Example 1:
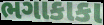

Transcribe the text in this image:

ભગાકાકા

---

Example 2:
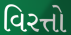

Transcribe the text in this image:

વિરત્તો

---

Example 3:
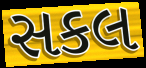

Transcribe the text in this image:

સકલ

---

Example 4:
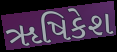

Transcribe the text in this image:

ૠષિકેશ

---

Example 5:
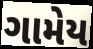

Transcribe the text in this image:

ગામેય